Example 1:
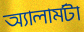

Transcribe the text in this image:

অ্যালার্মটা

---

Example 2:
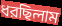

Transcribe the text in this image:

ধরছিলাম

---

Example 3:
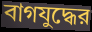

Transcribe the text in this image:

বাগযুদ্ধের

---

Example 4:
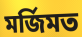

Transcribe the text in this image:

মর্জিমত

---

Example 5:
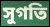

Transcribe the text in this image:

সুগতি